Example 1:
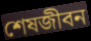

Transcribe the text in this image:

শেষজীবন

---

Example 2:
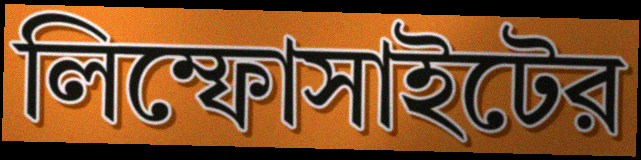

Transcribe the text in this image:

লিম্ফোসাইটের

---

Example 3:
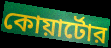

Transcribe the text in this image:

কোয়ার্টোর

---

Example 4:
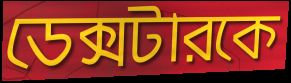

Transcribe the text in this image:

ডেক্সটারকে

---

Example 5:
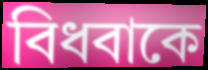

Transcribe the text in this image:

বিধবাকে